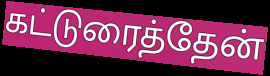
கட்டுரைத்தேன்